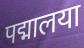
पद्मालया